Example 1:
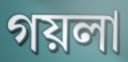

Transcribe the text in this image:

গয়লা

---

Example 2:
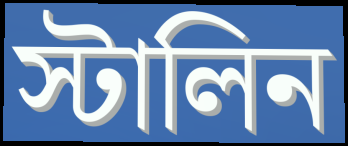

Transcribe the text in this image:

স্টালিন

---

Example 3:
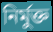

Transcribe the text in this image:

নির্মুক্ত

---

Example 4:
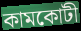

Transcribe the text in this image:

কামকোটী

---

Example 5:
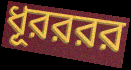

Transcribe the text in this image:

ধূরররর